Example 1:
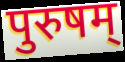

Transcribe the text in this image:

पुरुषम्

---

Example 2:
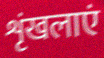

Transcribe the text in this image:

शृंखलाएं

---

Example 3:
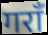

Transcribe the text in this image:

गराँ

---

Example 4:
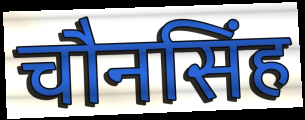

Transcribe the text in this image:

चौनसिंह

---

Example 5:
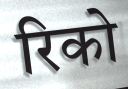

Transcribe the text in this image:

रिको